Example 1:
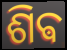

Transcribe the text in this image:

ଶିଵ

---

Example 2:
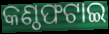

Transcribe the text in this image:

କଣ୍ଠଫଟାଇ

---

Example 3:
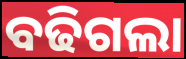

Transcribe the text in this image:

ବଢିଗଲା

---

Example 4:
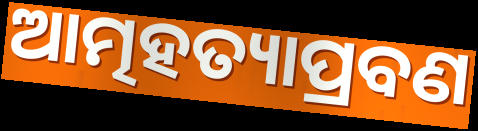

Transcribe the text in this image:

ଆତ୍ମହତ୍ୟାପ୍ରବଣ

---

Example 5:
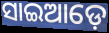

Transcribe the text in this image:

ସାଇଆଡ଼େ